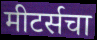
मीटर्सचा